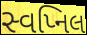
સ્વપ્નિલ